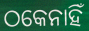
ଠକେନାହିଁ